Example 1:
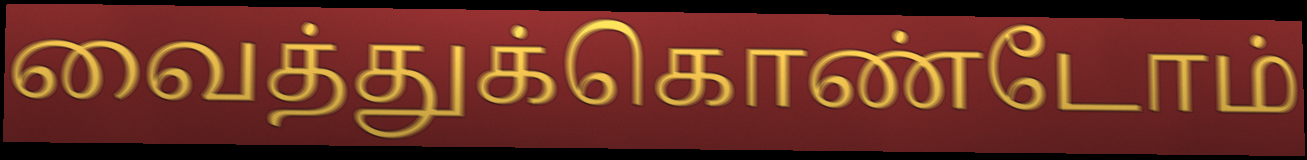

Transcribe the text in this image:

வைத்துக்கொண்டோம்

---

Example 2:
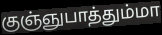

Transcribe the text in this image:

குஞ்ஞுபாத்தும்மா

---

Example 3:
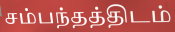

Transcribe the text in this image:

சம்பந்தத்திடம்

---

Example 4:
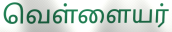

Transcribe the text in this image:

வெள்ளையர்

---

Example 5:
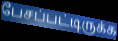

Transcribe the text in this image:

பேசப்பட்டிருக்க